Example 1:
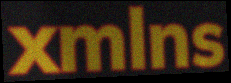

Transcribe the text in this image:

xmlns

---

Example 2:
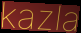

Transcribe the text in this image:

kazla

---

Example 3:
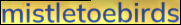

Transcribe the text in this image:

mistletoebirds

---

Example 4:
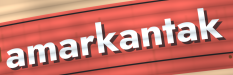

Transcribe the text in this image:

amarkantak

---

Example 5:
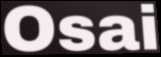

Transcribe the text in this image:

Osai